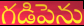
గడిపెను